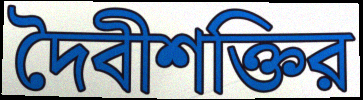
দৈবীশক্তির